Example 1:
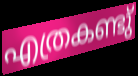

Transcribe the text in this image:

എത്രകണ്ടു്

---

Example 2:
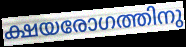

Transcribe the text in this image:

ക്ഷയരോഗത്തിനു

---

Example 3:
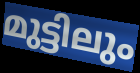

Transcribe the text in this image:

മുട്ടിലും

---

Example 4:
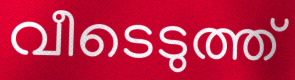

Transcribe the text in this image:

വീടെടുത്ത്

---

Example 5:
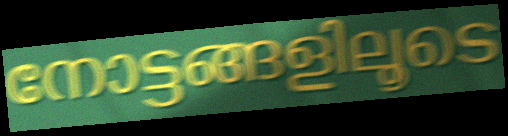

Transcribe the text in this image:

നോട്ടങ്ങളിലൂടെ